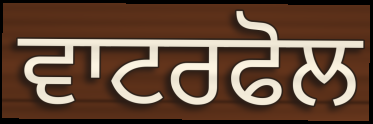
ਵਾਟਰਫੋਲ